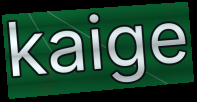
kaige